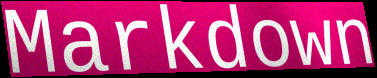
Markdown